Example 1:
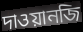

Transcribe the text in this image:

দাওয়ানজি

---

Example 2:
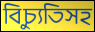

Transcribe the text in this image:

বিচ্যুতিসহ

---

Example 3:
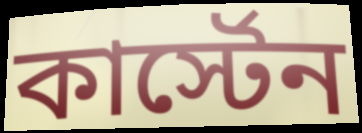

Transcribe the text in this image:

কার্স্টেন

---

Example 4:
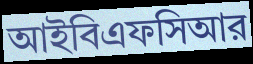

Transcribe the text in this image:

আইবিএফসিআর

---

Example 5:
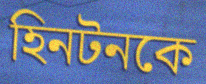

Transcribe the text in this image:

হিনটনকে